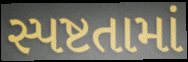
સ્પષ્ટતામાં